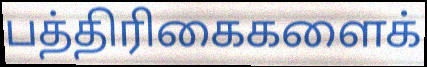
பத்திரிகைகளைக்